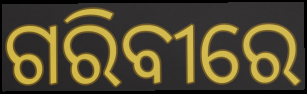
ଗରିବୀରେ